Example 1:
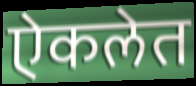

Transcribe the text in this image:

ऐकलेत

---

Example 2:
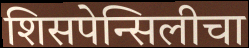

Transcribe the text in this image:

शिसपेन्सिलीचा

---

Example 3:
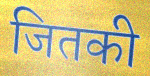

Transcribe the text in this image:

जितकी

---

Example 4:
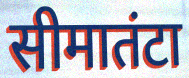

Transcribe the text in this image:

सीमातंटा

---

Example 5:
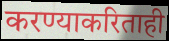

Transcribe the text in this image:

करण्याकरिताही